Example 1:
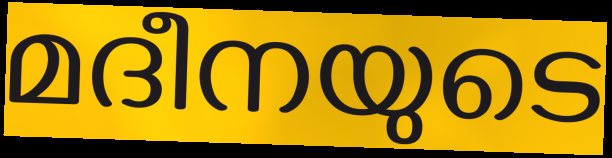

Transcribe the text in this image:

മദീനയുടെ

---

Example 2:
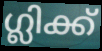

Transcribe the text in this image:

ഗ്ലിക്ക്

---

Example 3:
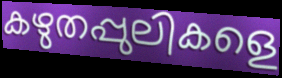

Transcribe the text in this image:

കഴുതപ്പുലികളെ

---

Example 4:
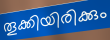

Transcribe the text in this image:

തൂക്കിയിരിക്കും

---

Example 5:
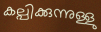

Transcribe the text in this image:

കല്പിക്കുന്നുള്ളു